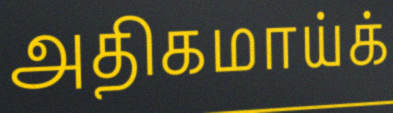
அதிகமாய்க்